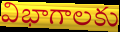
విభాగాలకు